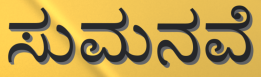
ಸುಮನವೆ